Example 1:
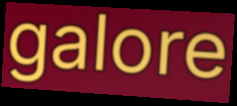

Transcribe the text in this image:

galore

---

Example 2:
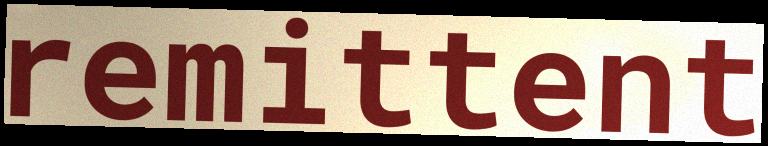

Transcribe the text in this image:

remittent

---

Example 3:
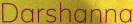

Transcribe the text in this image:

Darshanna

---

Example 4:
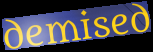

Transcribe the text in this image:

demised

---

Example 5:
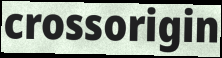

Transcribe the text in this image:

crossorigin